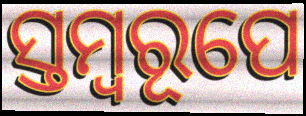
ସ୍ତମ୍ବରୂପେ